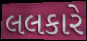
લલકારે